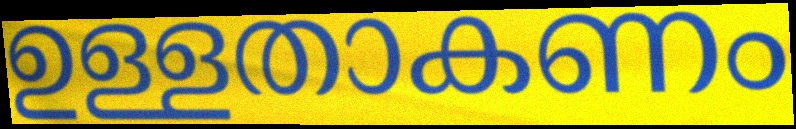
ഉള്ളതാകണം